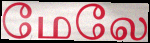
மேலே